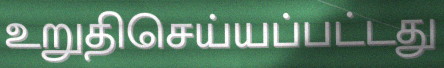
உறுதிசெய்யப்பட்டது